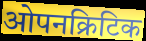
ओपनक्रिटिक